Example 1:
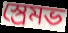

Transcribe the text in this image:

স্ত্রেমভ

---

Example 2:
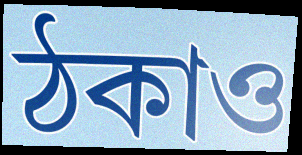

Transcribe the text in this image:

ঠকাও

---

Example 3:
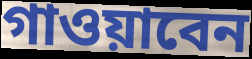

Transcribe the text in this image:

গাওয়াবেন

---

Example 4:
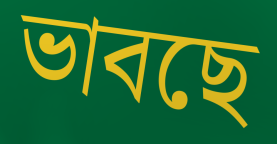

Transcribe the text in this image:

ভাবছে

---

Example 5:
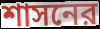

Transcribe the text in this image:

শাসনের